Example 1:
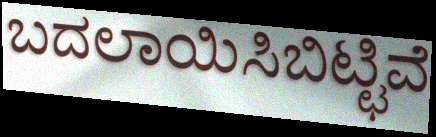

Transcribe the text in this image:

ಬದಲಾಯಿಸಿಬಿಟ್ಟಿವೆ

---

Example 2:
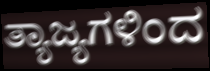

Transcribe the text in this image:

ತ್ಯಾಜ್ಯಗಳಿಂದ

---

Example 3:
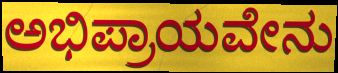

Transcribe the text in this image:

ಅಭಿಪ್ರಾಯವೇನು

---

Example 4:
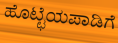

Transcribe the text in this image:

ಹೊಟ್ಟೆಯಪಾಡಿಗೆ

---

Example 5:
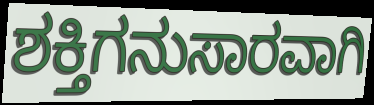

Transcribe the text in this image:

ಶಕ್ತಿಗನುಸಾರವಾಗಿ